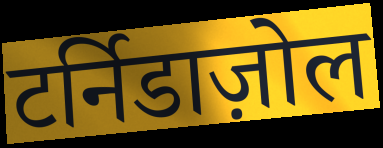
टर्निडाज़ोल